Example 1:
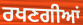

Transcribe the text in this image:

ਰਖਣਗੀਆਂ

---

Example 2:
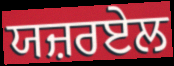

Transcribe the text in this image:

ਯਜ਼ਰਏਲ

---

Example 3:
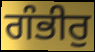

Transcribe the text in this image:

ਗੰਭੀਰੁ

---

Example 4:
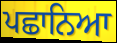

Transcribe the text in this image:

ਪਛਾਨਿਆ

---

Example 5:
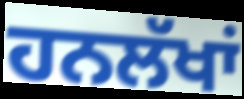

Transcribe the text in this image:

ਹਨਲੱਖਾਂ